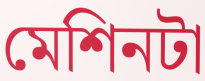
মেশিনটা